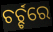
ଚର୍ଚ୍ଚରେ